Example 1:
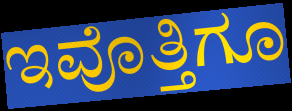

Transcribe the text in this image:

ಇವೊತ್ತಿಗೂ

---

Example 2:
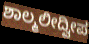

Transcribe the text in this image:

ಶಾಲ್ಮಲೀದ್ವೀಪ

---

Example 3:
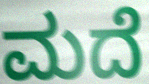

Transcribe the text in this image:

ಮದೆ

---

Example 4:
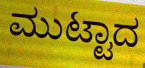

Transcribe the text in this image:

ಮುಟ್ಟಾದ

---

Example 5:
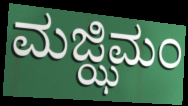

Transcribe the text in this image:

ಮಜ್ಝಿಮಂ